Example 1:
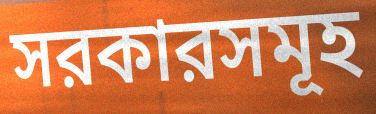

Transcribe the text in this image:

সরকারসমূহ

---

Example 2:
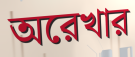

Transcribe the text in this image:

অরেখার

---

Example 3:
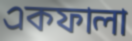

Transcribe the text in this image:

একফালা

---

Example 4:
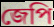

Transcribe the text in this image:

জেপি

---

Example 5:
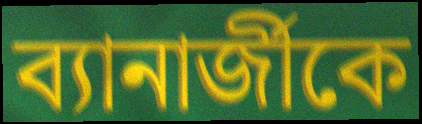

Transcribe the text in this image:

ব্যানার্জীকে